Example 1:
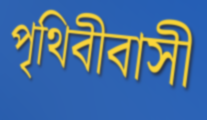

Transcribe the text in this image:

পৃথিবীবাসী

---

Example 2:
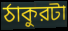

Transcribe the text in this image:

ঠাকুরটা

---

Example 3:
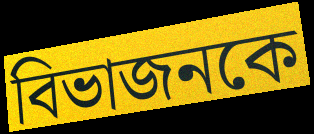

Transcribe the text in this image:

বিভাজনকে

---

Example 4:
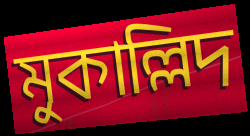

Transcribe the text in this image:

মুকাল্লিদ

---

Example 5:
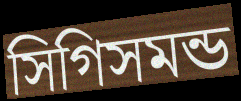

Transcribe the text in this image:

সিগিসমন্ড